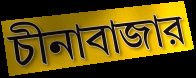
চীনাবাজার